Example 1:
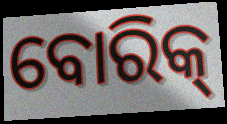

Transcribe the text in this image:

ବୋରିକ୍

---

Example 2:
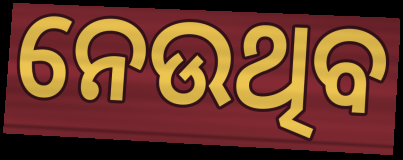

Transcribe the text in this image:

ନେଉଥିବ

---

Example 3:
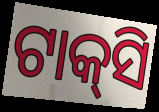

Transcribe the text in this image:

ଟାକ୍‍ସି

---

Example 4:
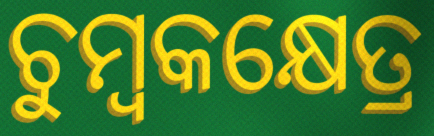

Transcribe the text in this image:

ଚୁମ୍ବକକ୍ଷେତ୍ର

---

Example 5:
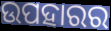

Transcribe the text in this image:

ଉପହାରର